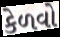
કેળવો